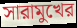
সারামুখের